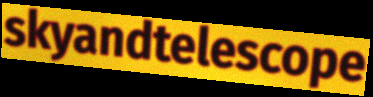
skyandtelescope